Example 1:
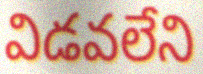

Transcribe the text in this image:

విడవలేని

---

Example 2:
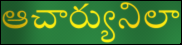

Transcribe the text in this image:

ఆచార్యునిలా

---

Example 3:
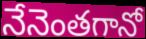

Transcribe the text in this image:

నేనెంతగానో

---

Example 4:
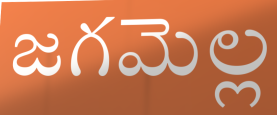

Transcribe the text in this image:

జగమెల్ల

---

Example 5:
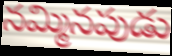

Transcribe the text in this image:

నమ్మినపుడు